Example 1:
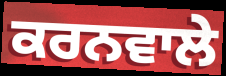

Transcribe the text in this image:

ਕਰਨਵਾਲੇ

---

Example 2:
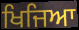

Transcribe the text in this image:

ਖਿਜਿਆ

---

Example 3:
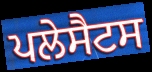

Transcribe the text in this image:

ਪਲੇਸੈਟਸ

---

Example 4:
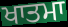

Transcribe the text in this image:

ਖਾਤਮਾ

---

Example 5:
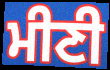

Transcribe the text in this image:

ਮੀਣੀ